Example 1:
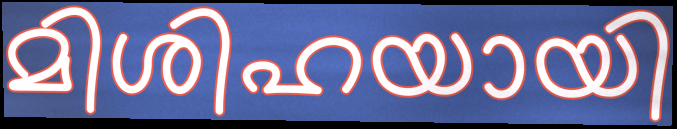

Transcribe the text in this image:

മിശിഹയായി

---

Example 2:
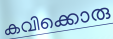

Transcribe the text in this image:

കവിക്കൊരു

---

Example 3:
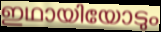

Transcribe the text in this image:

ഇഥായിയോടും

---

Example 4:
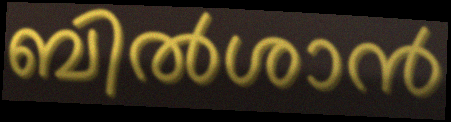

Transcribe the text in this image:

ബിൽശാൻ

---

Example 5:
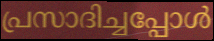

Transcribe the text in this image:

പ്രസാദിച്ചപ്പോൾ